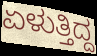
ಏಳುತ್ತಿದ್ದ